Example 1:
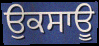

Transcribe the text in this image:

ਉਕਸਾਊ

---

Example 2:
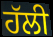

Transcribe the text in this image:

ਹੱਲੀ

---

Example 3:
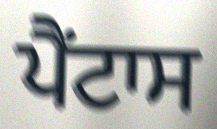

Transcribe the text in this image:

ਪੈਂਟਾਸ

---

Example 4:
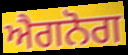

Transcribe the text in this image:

ਐਗਨੋਗ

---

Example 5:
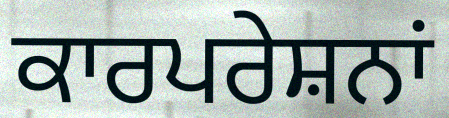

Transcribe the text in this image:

ਕਾਰਪਰੇਸ਼ਨਾਂ